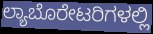
ಲ್ಯಾಬೊರೇಟರಿಗಳಲ್ಲಿ